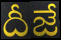
దీజే